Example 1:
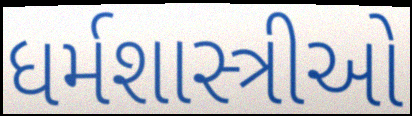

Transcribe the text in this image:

ધર્મશાસ્ત્રીઓ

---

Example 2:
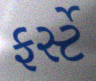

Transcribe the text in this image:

ફર્સ્ટે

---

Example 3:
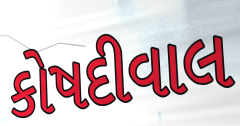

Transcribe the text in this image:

કોષદીવાલ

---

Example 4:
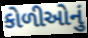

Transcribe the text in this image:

કોળીઓનું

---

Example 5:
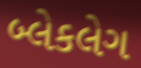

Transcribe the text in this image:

બ્લેકલેગ